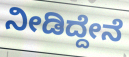
ನೀಡಿದ್ದೇನೆ